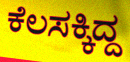
ಕೆಲಸಕ್ಕಿದ್ದ